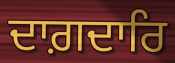
ਦਾਗ਼ਦਾਰਿ